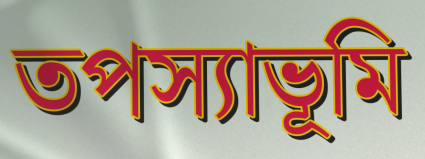
তপস্যাভূমি